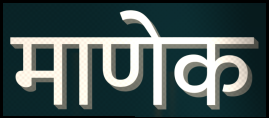
माणेक